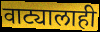
वाट्यालाही